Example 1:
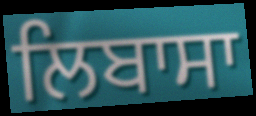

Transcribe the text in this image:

ਲਿਬਾਸਾ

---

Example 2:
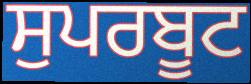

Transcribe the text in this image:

ਸੁਪਰਬੂਟ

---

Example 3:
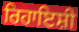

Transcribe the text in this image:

ਰਿਹਾਇਸ਼ੀ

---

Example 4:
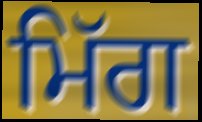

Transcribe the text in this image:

ਮਿੱਗ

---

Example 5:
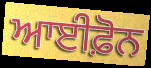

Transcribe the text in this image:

ਆਈਫ਼ੋਨ